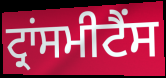
ਟ੍ਰਾਂਸਮੀਟੈਂਸ